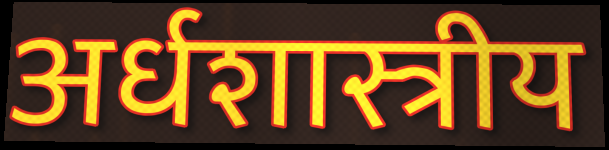
अर्धशास्त्रीय